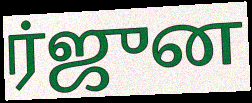
ர்ஜுன